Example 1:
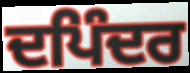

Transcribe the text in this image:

ਦਪਿੰਦਰ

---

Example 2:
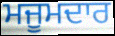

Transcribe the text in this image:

ਮਜੂਮਦਾਰ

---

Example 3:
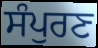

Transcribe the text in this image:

ਸੰਪੁਰਣ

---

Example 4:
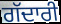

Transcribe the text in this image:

ਗੱਦਾਰੀ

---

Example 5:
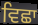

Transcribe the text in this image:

ਵਿਛਾ